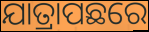
ଯାତ୍ରାପଛରେ